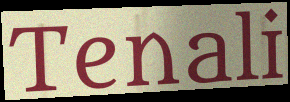
Tenali